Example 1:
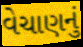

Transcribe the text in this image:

વેચાણનું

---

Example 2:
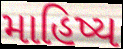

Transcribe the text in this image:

માહિષ્ય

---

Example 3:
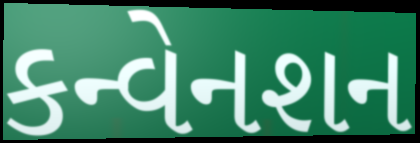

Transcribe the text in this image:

કન્વેનશન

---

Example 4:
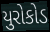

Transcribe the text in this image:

યુરોકોડ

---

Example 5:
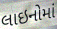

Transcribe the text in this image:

લાઇનોમાં